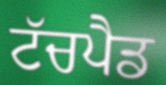
ਟੱਚਪੈਡ